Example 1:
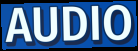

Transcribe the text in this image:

AUDIO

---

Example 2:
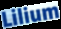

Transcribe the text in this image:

Lilium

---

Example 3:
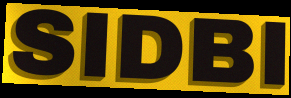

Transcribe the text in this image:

SIDBI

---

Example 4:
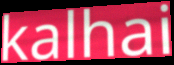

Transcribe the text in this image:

kalhai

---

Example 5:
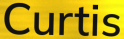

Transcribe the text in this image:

Curtis